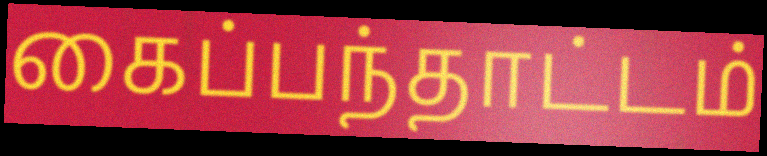
கைப்பந்தாட்டம்